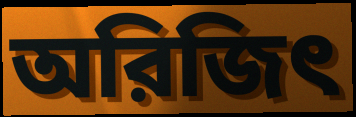
অরিজিৎ